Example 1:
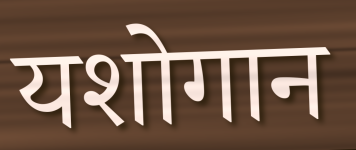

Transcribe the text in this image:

यशोगान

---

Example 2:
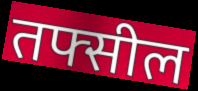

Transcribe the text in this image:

तफ्सील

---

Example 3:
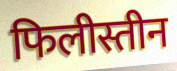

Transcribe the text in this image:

फिलीस्तीन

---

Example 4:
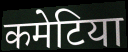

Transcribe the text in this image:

कमेटिया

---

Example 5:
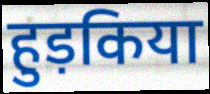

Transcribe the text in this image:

हुड़किया